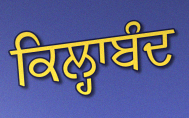
ਕਿਲ੍ਹਾਬੰਦ